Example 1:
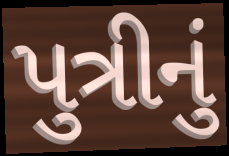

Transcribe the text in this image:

પુત્રીનું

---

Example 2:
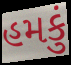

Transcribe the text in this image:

હમકું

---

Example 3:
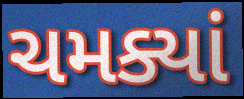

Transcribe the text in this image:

ચમક્યાં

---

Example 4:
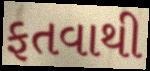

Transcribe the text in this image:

ફતવાથી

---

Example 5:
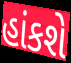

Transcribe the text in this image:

હાંકશે